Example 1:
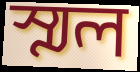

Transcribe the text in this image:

স্মল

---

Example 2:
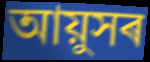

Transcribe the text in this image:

আয়ুসৰ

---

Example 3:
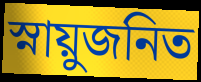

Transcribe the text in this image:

স্নায়ুজনিত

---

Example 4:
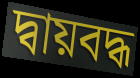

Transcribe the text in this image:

দ্বায়বদ্ধ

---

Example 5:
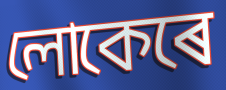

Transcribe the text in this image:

লোকেৰে